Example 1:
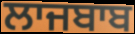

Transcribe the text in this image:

ਲਾਜਬਾਬ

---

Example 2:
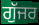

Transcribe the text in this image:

ਗੁੱਜਰ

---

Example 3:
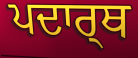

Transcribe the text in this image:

ਪਦਾਰ੍ਥ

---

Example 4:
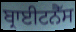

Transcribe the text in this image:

ਬ੍ਰਾਈਟਨੈੱਸ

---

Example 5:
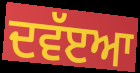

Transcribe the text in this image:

ਦਵੱੲਆ